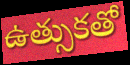
ఉత్సుకతో